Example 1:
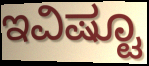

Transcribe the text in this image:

ಇವಿಷ್ಟೂ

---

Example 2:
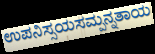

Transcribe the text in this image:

ಉಪನಿಸ್ಸಯಸಮ್ಪನ್ನತಾಯ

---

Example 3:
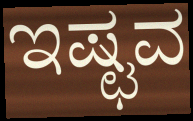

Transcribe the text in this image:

ಇಷ್ಟವ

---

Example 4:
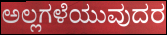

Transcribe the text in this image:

ಅಲ್ಲಗಳೆಯುವುದರ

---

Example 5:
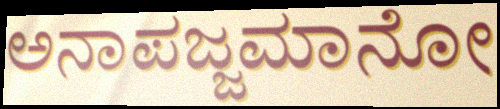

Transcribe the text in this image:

ಅನಾಪಜ್ಜಮಾನೋ